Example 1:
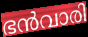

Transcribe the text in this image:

ഭൻവാരി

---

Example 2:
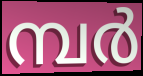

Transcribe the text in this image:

മ്പർ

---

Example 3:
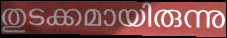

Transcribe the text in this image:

തുടക്കമായിരുന്നു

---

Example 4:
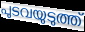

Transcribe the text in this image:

പുടവയുടുത്ത്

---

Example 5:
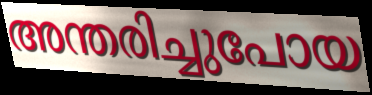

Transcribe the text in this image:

അന്തരിച്ചുപോയ